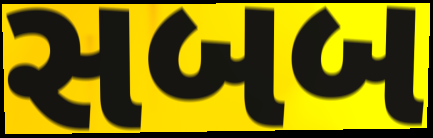
સબબ